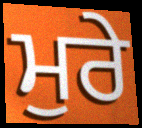
ਮੁਰੇ